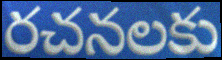
రచనలకు